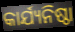
କାର୍ଯ୍ୟନିଷ୍ଠା